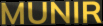
MUNIR